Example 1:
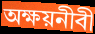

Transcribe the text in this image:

অক্ষয়নীবী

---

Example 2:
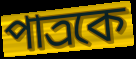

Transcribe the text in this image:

পাত্রকে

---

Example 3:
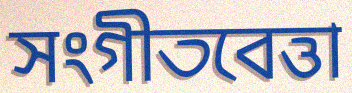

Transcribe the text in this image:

সংগীতবেত্তা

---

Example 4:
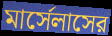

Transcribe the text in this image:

মার্সেলাসের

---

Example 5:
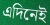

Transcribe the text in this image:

এদিনেই